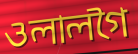
ওলালগৈ